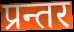
प्रन्तर